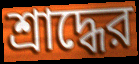
শ্রাদ্ধের